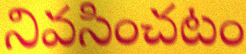
నివసించటం